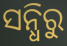
ସନ୍ଧିରୁ